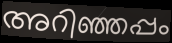
അറിഞ്ഞപ്പം